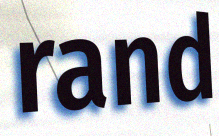
rand